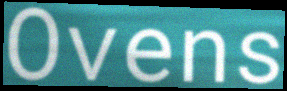
Ovens